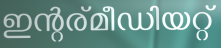
ഇന്റര്മീഡിയറ്റ്